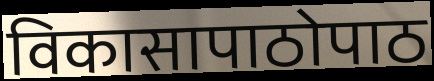
विकासापाठोपाठ